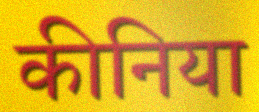
कीनिया